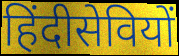
हिंदीसेवियों